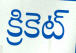
క్రికెట్